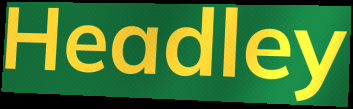
Headley